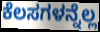
ಕೆಲಸಗಳನ್ನೆಲ್ಲ